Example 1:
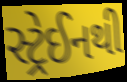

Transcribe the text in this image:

સ્ટ્રેઈનથી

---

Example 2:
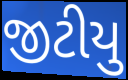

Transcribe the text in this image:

જીટીયુ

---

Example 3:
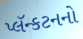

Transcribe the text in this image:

પ્લૅન્કટનનો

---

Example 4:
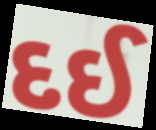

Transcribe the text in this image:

દઈ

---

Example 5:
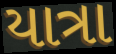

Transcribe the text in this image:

યાત્રા